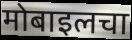
मोबाइलचा